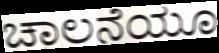
ಚಾಲನೆಯೂ